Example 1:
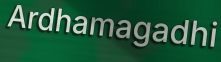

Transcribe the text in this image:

Ardhamagadhi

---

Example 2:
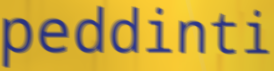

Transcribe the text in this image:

peddinti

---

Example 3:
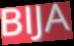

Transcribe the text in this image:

BIJA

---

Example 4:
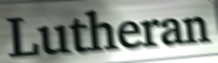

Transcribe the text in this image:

Lutheran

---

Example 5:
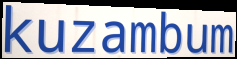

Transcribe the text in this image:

kuzambum